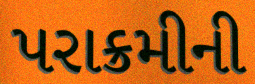
પરાક્રમીની